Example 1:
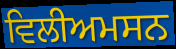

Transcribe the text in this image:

ਵਿਲੀਅਮਸਨ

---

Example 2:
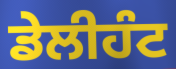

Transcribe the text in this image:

ਡੇਲੀਹੰਟ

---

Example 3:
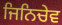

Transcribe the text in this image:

ਜਿਨਿਚੇਵ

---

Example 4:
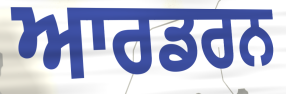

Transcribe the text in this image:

ਆਰਡਰਨ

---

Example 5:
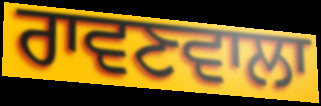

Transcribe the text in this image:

ਰਾਵਣਵਾਲਾ